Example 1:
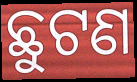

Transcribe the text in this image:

ଛୁଟଣ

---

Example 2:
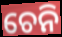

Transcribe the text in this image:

ଚେନି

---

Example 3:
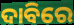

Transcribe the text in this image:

ଦାବିରେ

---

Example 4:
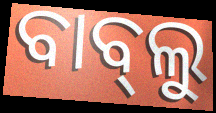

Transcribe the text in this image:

ବାବ୍‍ଲୁ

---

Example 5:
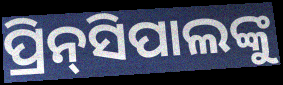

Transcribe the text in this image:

ପ୍ରିନ୍‌ସିପାଲଙ୍କୁ